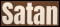
Satan